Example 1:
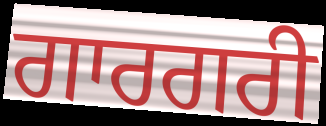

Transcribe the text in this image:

ਗਾਰਗਰੀ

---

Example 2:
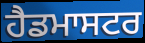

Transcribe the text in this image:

ਹੈਡਮਾਸਟਰ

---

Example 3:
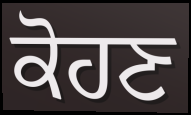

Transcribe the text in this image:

ਕੋਹਣ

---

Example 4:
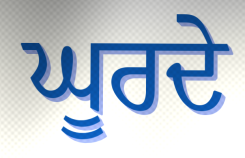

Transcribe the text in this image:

ਘੂਰਦੇ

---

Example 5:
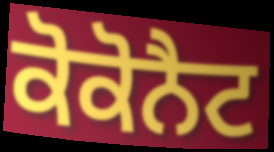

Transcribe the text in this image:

ਕੋਕੋਨੈਟ